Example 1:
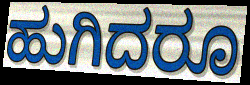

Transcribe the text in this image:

ಹುಗಿದರೂ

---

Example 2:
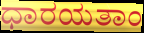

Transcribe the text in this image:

ಧಾರಯತಾಂ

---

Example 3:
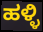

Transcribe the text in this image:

ಹಳ್ಳಿ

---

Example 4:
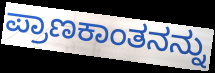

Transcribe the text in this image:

ಪ್ರಾಣಕಾಂತನನ್ನು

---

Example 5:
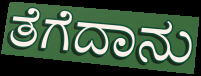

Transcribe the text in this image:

ತೆಗೆದಾನು